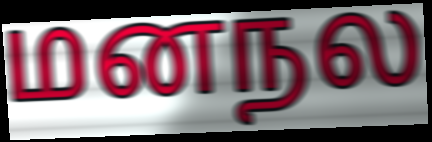
மனநல